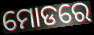
ମୋଡରେ